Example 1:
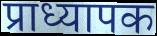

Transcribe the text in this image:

प्राध्यापक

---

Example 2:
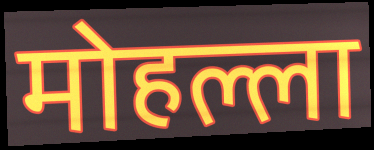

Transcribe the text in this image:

मोहल्‍ला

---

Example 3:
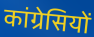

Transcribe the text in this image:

कांग्रेसियों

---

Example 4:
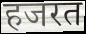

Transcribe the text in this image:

हजरत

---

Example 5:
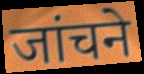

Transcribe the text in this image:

जांचने